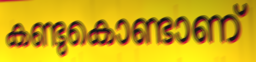
കണ്ടുകൊണ്ടാണ്